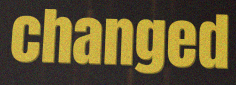
changed